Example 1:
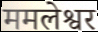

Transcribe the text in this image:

ममलेश्वर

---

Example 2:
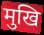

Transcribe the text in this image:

मुखि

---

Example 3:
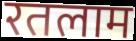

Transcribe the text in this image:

रतलाम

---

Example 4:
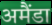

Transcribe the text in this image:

अमैंडा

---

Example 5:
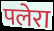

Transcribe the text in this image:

पलेरा